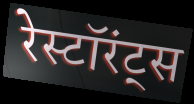
रेस्टॉरंट्‌स